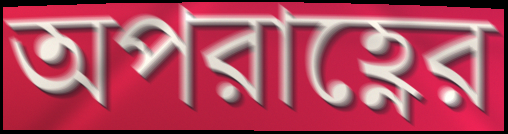
অপরাহ্ণের